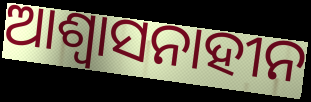
ଆଶ୍ୱାସନାହୀନ